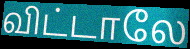
விட்டாலே